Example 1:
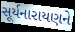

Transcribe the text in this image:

સૂર્યનારાયણને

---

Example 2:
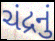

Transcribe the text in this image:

ચંદ્રનું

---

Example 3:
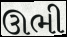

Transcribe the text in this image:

ઊભી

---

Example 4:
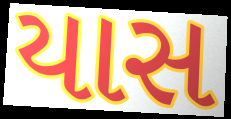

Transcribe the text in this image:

યાસ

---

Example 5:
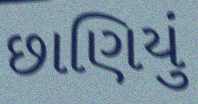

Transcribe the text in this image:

છાણિયું